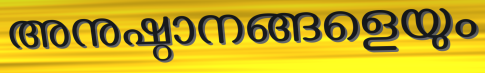
അനുഷ്ഠാനങ്ങളെയും